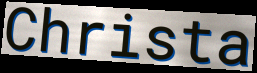
Christa